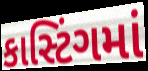
કાસ્ટિંગમાં